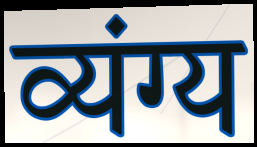
व्यंग्य